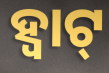
ହ୍ବାଟ୍